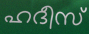
ഹദീസ്